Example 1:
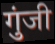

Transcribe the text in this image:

गुंजी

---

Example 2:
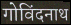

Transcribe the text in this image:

गोविंदनाथ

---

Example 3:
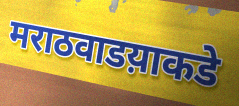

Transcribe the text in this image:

मराठवाडय़ाकडे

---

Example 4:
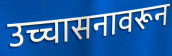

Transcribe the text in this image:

उच्चासनावरून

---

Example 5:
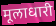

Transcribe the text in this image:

मूलाधारी